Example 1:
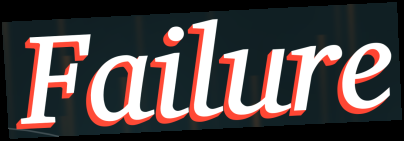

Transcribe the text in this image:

Failure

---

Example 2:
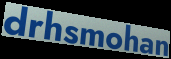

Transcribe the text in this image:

drhsmohan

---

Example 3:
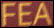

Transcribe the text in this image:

FEA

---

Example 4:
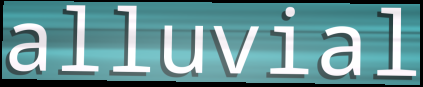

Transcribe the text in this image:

alluvial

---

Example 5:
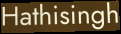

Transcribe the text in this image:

Hathisingh